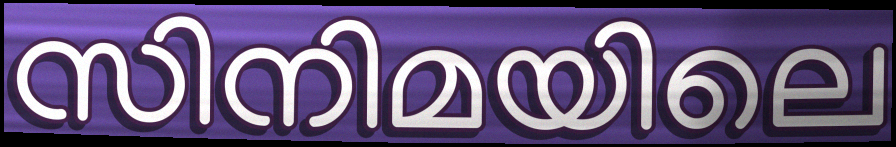
സിനിമയിലെ